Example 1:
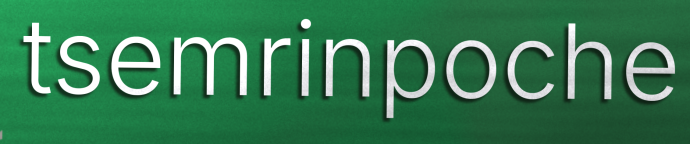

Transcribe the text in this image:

tsemrinpoche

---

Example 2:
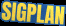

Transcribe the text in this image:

SIGPLAN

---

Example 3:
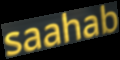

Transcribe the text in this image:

saahab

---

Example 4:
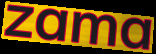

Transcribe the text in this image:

zama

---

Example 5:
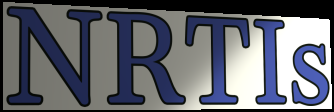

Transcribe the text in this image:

NRTIs